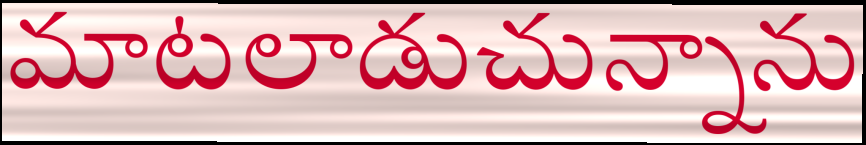
మాటలాడుచున్నాను